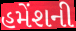
હમેંશની